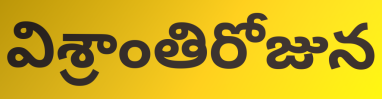
విశ్రాంతిరోజున